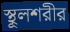
স্থূলশরীর